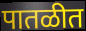
पातळीत